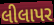
લીલાપર